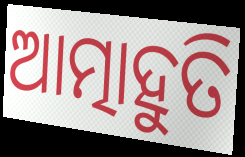
ଆତ୍ମାହୁତି